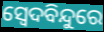
ସ୍ୱେଦବିନ୍ଦୁରେ